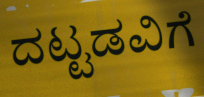
ದಟ್ಟಡವಿಗೆ